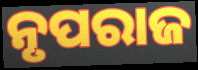
ନୃପରାଜ